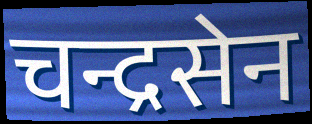
चन्द्रसेन